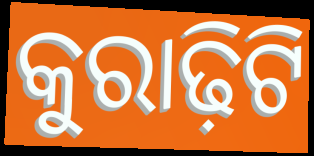
କୁରାଢ଼ିଟି